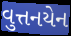
વુત્તનયેન